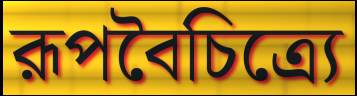
রূপবৈচিত্র্যে